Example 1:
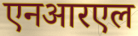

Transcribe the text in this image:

एनआरएल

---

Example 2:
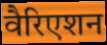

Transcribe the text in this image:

वैरिएशन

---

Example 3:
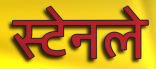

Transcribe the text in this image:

स्टेनले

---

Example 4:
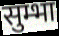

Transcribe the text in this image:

सुम्भा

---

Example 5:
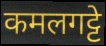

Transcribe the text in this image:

कमलगट्टे